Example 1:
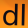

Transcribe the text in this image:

dl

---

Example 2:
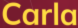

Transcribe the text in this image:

Carla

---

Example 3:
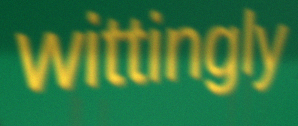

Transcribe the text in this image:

wittingly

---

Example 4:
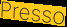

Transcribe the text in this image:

Presso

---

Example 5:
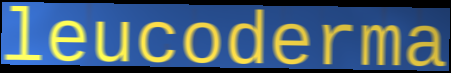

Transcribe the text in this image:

leucoderma